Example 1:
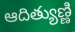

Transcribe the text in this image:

ఆదిత్యుణ్ణి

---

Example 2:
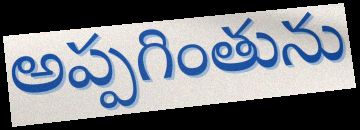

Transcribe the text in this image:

అప్పగింతును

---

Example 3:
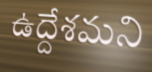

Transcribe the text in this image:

ఉద్దేశమని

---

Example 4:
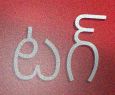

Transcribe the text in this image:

టగ్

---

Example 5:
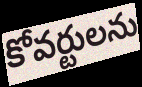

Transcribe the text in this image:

కోవర్టులను